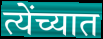
त्येंच्यात